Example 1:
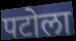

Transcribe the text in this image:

पटोला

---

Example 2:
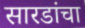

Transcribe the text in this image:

सारडांचा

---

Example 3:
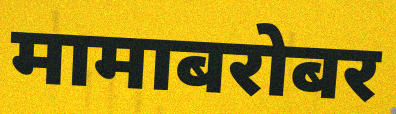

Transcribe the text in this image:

मामाबरोबर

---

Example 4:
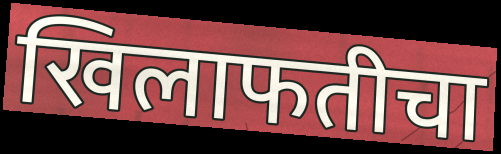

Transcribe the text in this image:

खिलाफतीचा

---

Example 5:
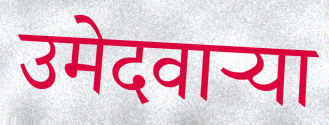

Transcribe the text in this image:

उमेदवाऱ्या